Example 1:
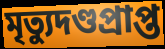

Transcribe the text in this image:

মৃত্যুদণ্ডপ্রাপ্ত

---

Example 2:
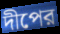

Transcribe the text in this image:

দীপের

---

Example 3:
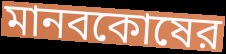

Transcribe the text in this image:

মানবকোষের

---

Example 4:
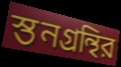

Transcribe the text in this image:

স্তনগ্রন্থির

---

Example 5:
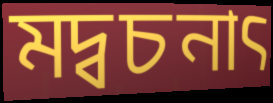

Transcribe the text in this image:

মদ্বচনাৎ